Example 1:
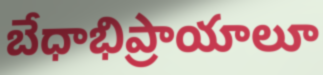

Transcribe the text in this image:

బేధాభిప్రాయాలూ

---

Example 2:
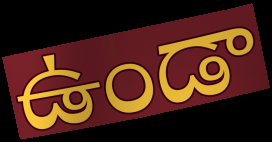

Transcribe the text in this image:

ఉండా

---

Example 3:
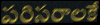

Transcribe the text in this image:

పరిసరాలకే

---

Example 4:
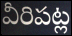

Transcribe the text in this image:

వీరిపట్ల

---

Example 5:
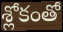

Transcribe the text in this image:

శ్లోకంతో